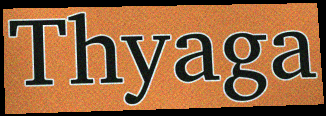
Thyaga